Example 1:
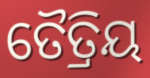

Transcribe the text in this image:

ତୈତ୍ରିୟ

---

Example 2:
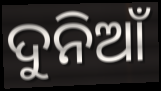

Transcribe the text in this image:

ଦୁନିଆଁ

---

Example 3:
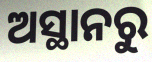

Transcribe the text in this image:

ଅସ୍ଥାନରୁ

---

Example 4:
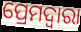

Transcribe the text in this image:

ପ୍ରେମଦ୍ୱାରା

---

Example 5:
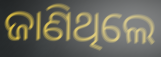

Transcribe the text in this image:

ଜାଣିଥିଲେ